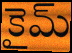
కైమ్